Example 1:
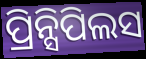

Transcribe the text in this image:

ପ୍ରିନ୍ସିପିଲସ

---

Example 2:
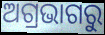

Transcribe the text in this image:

ଅଗ୍ରଭାଗରୁ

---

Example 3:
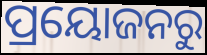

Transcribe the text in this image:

ପ୍ରୟୋଜନରୁ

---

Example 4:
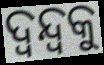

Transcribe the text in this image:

ଦ୍ୱନ୍ଦ୍ୱକୁ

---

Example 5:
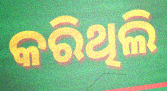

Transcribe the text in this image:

କରିଥିଲି